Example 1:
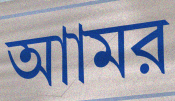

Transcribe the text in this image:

আামর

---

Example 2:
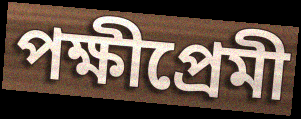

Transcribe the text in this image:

পক্ষীপ্রেমী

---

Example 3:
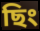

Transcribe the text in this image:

ছিং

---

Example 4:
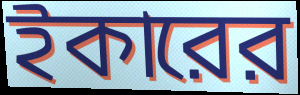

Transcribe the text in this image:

ইকারের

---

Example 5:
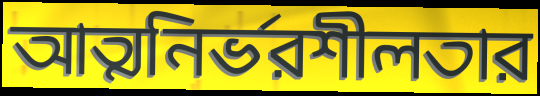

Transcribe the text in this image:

আত্মনির্ভরশীলতার